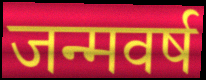
जन्मवर्ष